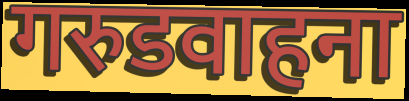
गरुडवाहना